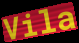
Vila